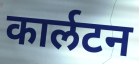
कार्लटन